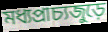
মধ্যপ্রাচ্যজুড়ে